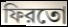
ফিরতো